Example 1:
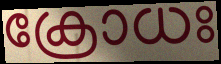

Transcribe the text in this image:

ക്രോധഃ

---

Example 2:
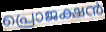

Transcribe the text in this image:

പ്രൊജക്ഷൻ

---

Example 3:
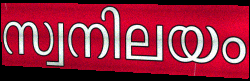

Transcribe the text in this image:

സ്വനിലയം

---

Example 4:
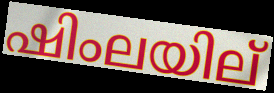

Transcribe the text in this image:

ഷിംലയില്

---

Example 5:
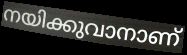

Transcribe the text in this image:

നയിക്കുവാനാണ്